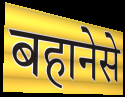
बहानेसे